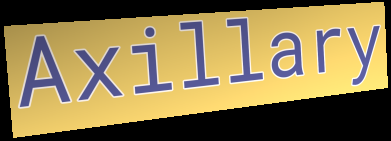
Axillary